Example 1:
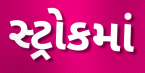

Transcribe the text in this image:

સ્ટ્રોકમાં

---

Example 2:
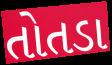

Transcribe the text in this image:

તોતડા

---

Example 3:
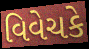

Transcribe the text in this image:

વિવેચકે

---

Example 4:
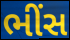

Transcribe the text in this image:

ભીંસ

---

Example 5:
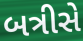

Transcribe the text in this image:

બત્રીસે